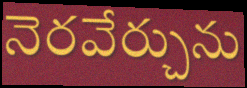
నెరవేర్చును